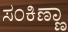
ಸಂಕಿಣ್ಣಾ